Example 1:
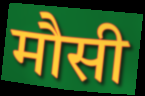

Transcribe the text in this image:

मौसी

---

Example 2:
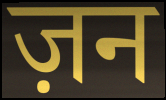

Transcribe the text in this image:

ज़न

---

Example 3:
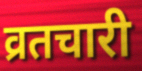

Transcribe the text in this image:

व्रतचारी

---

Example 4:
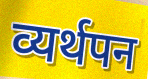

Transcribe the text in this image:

व्यर्थपन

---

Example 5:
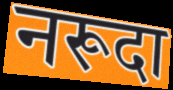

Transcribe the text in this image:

नरूदा